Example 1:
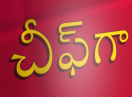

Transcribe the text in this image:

చీఫ్‌గా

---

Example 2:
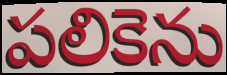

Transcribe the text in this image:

పలికెను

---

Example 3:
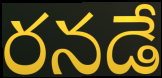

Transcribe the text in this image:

రనడే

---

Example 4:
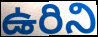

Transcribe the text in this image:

ఉరిని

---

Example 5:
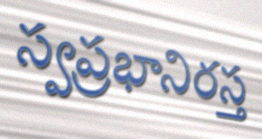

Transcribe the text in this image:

స్వప్రభానిరస్త